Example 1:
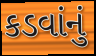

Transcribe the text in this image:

કડવાંનું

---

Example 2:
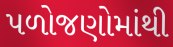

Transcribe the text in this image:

પળોજણોમાંથી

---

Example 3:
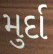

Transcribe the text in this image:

મુર્દા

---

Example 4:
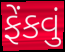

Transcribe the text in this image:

ફેંકવું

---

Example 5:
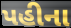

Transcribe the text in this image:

પહીના